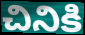
చినికి